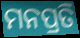
ମନପ୍ରତି